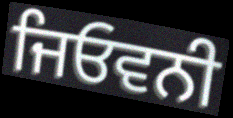
ਜਿਓਵਨੀ